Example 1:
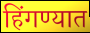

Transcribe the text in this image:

हिंगण्यात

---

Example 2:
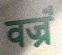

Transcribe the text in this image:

वज्रं॑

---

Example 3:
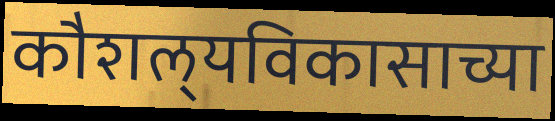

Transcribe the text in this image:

कौशल्यविकासाच्या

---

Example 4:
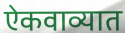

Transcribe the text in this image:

ऐकवाव्यात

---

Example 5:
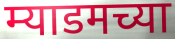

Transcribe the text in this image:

म्याडमच्या